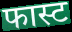
फास्ट